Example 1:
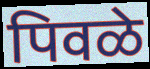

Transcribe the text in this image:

पिवळे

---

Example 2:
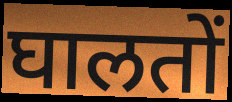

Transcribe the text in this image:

घालतों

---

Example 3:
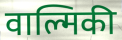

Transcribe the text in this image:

वाल्मिकी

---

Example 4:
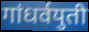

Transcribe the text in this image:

गांधर्वयुती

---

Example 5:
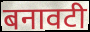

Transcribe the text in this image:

बनावटी